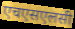
एचएसएलसी